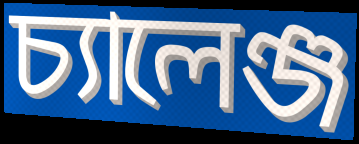
চ্যালেঞ্জ